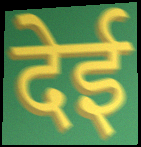
देई